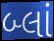
બ્લાં